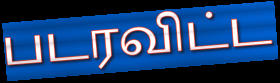
படரவிட்ட